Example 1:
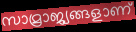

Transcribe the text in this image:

സാമ്രാജ്യങ്ങളാണ്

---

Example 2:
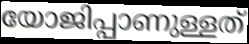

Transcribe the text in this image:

യോജിപ്പാണുള്ളത്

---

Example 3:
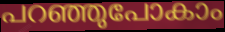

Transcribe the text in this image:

പറഞ്ഞുപോകാം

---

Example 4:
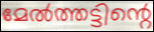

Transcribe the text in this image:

മേൽത്തട്ടിന്റെ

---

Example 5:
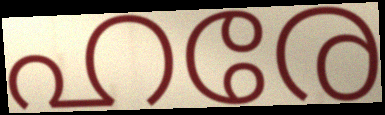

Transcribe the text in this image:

ഹരേ